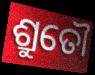
ଶ୍ରୁତୌ